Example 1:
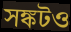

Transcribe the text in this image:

সঙ্কটও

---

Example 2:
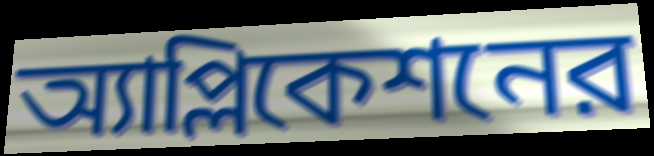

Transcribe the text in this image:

অ্যাপ্লিকেশনের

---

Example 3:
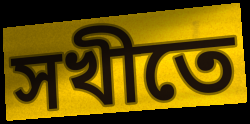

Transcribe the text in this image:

সখীতে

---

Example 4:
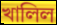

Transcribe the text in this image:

খালিল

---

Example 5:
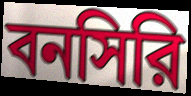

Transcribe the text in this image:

বনসিরি